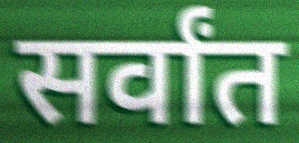
सर्वांत